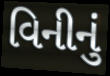
વિનીનું